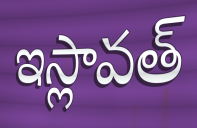
ఇస్లావత్